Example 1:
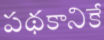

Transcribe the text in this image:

పథకానికే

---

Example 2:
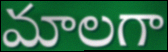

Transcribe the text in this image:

మాలగా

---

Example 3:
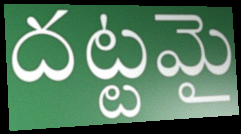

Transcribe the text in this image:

దట్టమై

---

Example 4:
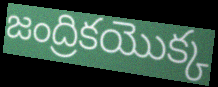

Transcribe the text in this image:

జంద్రికయొక్క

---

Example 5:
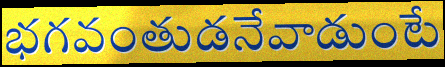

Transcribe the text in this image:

భగవంతుడనేవాడుంటే